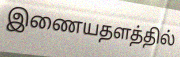
இணையதளத்தில்